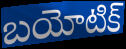
బయోటిక్